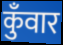
कुँवार